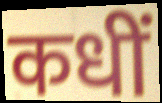
कधीं